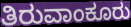
ತಿರುವಾಂಕೂರು